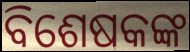
ବିଶେଷକଙ୍କ